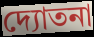
দ্যোতনা